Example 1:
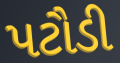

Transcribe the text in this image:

પટૌડી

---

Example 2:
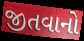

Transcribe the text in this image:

જીતવાનો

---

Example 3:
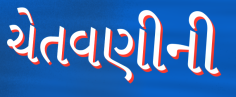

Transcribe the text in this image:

ચેતવણીની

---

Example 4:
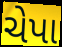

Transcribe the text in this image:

ચેપા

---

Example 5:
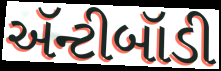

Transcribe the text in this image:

ઍન્ટીબૉડી